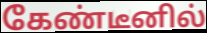
கேண்டீனில்